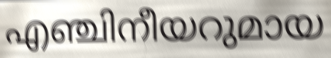
എഞ്ചിനീയറുമായ